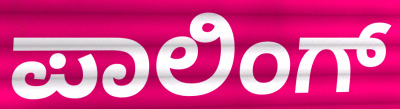
ಪಾಲಿಂಗ್